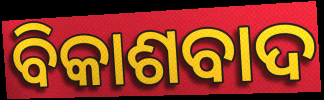
ବିକାଶବାଦ